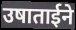
उषाताईने